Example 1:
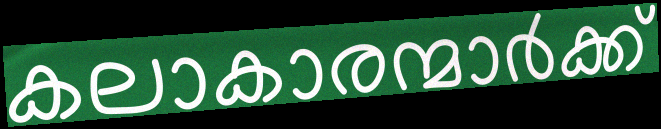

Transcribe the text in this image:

കലാകാരന്മാർക്ക്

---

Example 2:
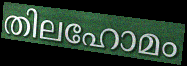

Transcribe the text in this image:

തിലഹോമം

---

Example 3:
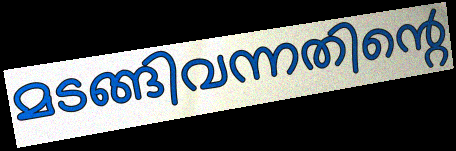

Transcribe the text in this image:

മടങ്ങിവന്നതിന്റെ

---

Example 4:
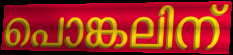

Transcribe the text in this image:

പൊങ്കലിന്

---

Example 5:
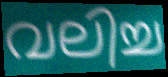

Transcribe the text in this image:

വലിച്ച